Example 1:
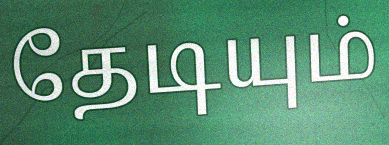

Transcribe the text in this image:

தேடியும்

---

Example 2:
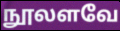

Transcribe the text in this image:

நூலளவே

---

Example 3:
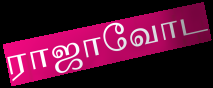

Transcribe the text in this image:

ராஜாவோட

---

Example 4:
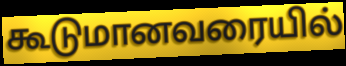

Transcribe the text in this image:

கூடுமானவரையில்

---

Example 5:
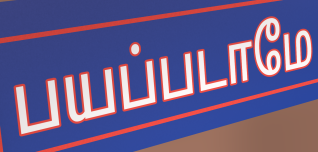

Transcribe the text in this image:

பயப்படாமே